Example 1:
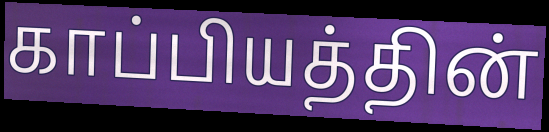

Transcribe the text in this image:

காப்பியத்தின்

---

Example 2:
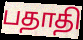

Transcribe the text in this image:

பதாதி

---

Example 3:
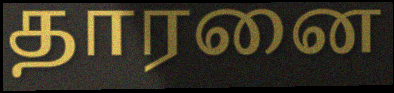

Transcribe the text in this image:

தாரனை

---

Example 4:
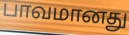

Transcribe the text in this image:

பாவமானது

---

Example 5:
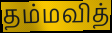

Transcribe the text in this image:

தம்மவித்